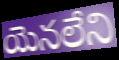
యెనలేని